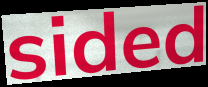
sided